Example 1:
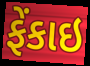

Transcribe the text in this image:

ફેંકાઇ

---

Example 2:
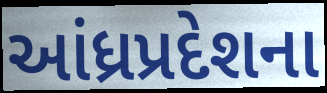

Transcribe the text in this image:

આંધ્રપ્રદેશના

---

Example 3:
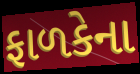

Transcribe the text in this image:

ફાળકેના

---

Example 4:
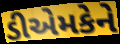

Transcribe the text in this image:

ડીએમકેને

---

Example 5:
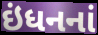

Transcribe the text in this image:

ઇંધનનાં